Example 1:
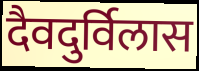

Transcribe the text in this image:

दैवदुर्विलास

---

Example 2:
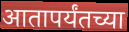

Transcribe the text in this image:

आतापर्यंतच्या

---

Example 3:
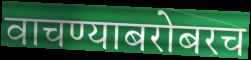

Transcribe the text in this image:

वाचण्याबरोबरच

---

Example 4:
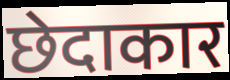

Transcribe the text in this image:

छेदाकार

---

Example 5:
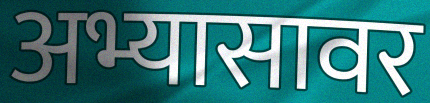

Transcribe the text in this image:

अभ्यासावर